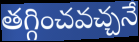
తగ్గించవచ్చనే